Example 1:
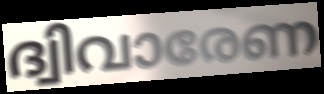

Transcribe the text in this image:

ദ്വിവാരേണ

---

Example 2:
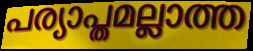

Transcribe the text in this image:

പര്യാപ്തമല്ലാത്ത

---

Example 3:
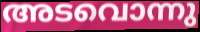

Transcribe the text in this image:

അടവൊന്നു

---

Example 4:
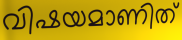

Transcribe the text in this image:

വിഷയമാണിത്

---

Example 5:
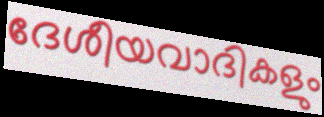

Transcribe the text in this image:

ദേശീയവാദികളും